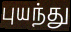
புயந்து